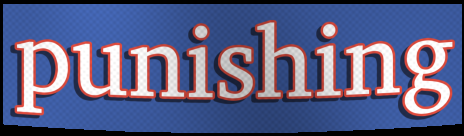
punishing